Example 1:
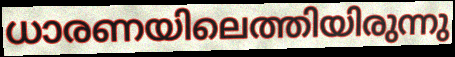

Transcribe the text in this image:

ധാരണയിലെത്തിയിരുന്നു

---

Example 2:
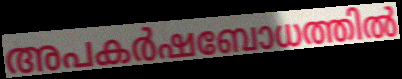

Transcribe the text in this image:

അപകർഷബോധത്തിൽ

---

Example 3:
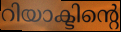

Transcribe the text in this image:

റിയാക്ടിന്റെ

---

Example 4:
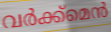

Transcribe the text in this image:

വർക്ക്മെൻ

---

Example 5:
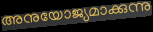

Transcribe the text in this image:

അനുയോജ്യമാക്കുന്നു